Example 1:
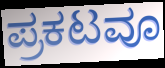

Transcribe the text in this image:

ಪ್ರಕಟವೂ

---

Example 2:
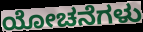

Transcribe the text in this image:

ಯೋಚನೆಗಳು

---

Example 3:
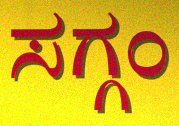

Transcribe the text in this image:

ಸಗ್ಗಂ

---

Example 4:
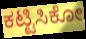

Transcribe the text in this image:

ಕಟ್ಟಿಸಿಕೋ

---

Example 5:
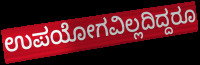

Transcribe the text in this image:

ಉಪಯೋಗವಿಲ್ಲದಿದ್ದರೂ